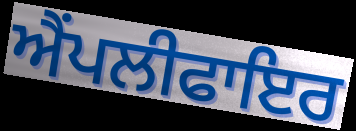
ਐਂਪਲੀਫਾਇਰ